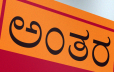
ಅಂತರ